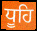
ਧੂਹਿ